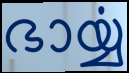
ഭാൎയ്യ